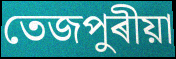
তেজপুৰীয়া